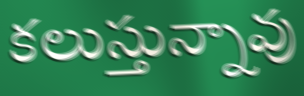
కలుస్తున్నావు